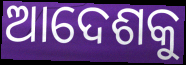
ଆଦେଶକୁ